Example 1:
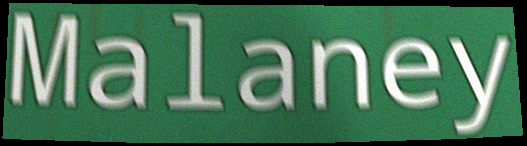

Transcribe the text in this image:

Malaney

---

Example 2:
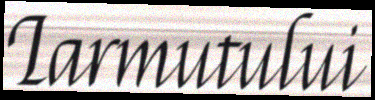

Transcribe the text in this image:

Iarmutului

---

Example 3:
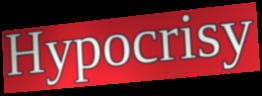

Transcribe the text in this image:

Hypocrisy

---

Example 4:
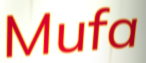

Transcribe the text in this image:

Mufa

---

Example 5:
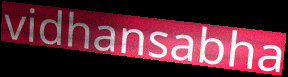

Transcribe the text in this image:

vidhansabha